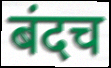
बंदच